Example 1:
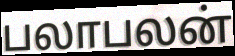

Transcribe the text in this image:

பலாபலன்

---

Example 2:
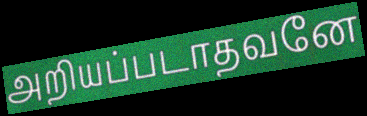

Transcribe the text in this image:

அறியப்படாதவனே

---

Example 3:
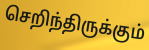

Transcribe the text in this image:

செறிந்திருக்கும்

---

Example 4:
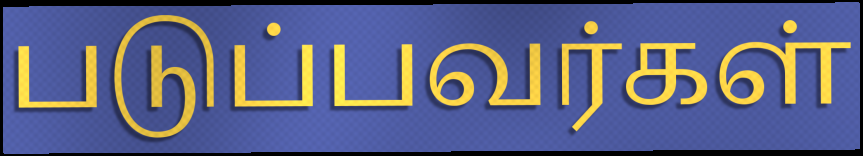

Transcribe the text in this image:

படுப்பவர்கள்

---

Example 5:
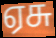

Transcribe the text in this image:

ஏசு